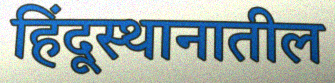
हिंदूस्थानातील